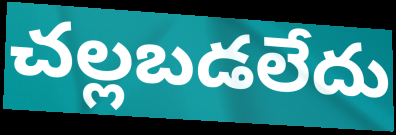
చల్లబడలేదు